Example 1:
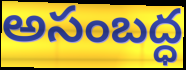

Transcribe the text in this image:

అసంబద్ధ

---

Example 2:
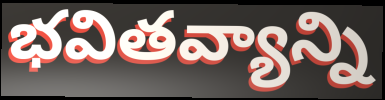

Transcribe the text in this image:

భవితవ్యాన్ని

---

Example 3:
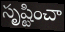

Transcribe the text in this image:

సృష్టించా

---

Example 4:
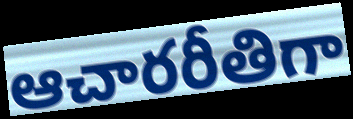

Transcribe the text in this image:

ఆచారరీతిగా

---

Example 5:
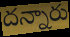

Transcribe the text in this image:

దన్నారు